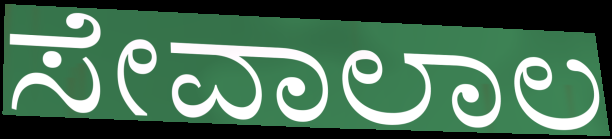
ಸೇವಾಲಾಲ